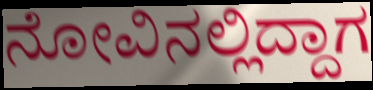
ನೋವಿನಲ್ಲಿದ್ದಾಗ